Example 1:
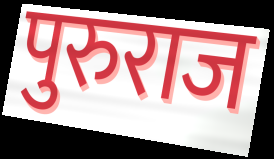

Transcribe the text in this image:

पुरुराज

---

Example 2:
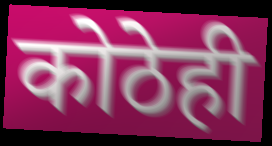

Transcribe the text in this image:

कोठेही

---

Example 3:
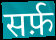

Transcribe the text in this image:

सर्फ़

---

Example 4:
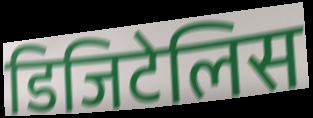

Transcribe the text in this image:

डिजिटेलिस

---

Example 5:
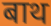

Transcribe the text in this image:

बाथ